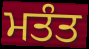
ਮਤੰਤ